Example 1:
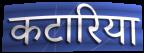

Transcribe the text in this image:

कटारिया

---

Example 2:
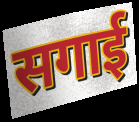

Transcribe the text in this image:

सगाई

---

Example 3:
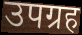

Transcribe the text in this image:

उपग्रह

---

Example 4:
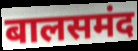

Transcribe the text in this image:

बालसमंद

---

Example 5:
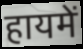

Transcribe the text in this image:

हायमें